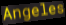
Angeles